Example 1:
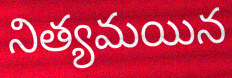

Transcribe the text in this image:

నిత్యమయిన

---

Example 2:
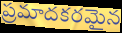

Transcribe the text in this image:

ప్రమాదకరమైన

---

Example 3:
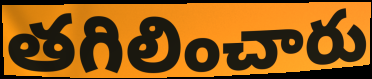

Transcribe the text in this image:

తగిలించారు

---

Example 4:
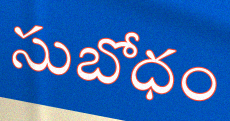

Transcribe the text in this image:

సుబోధం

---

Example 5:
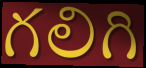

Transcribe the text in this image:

గలిగి